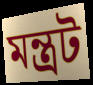
মন্ত্রট